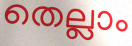
തെല്ലാം